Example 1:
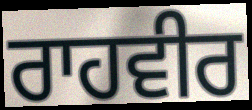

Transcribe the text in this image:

ਰਾਹਵੀਰ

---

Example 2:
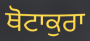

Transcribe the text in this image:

ਥੋਟਾਕੁਰਾ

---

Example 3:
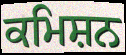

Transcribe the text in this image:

ਕਮਿਸ਼ਨ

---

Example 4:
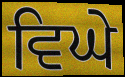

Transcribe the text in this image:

ਵਿਘੇ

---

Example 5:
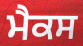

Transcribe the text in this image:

ਮੈਕਸ